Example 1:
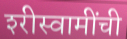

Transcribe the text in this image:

श्रीस्वामींची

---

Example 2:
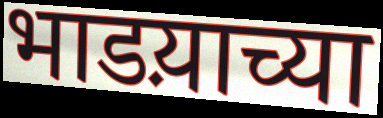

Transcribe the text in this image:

भाडय़ाच्या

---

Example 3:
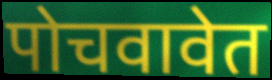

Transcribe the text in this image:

पोचवावेत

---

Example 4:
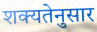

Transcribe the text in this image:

शक्यतेनुसार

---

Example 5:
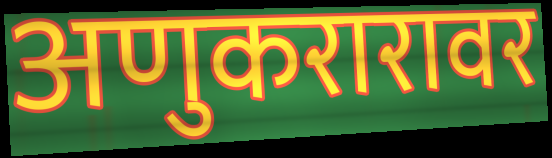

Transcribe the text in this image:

अणुकरारावर